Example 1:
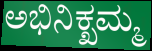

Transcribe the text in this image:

ಅಭಿನಿಕ್ಖಮ್ಮ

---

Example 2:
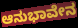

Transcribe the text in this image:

ಆನುಭಾವೇನ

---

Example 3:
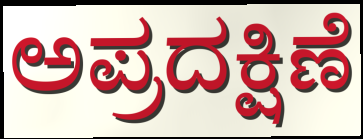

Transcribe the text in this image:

ಅಪ್ರದಕ್ಷಿಣೆ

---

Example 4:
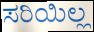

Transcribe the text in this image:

ಸರಿಯಿಲ್ಲ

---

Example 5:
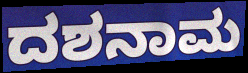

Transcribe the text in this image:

ದಶನಾಮ